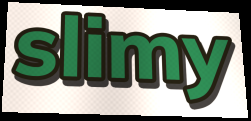
slimy